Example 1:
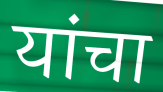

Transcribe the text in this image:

यांचा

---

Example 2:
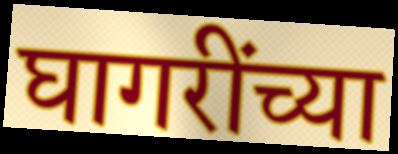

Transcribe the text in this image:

घागरींच्या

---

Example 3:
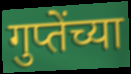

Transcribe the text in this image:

गुप्तेंच्या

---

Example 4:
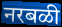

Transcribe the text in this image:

नरबळी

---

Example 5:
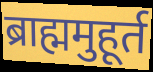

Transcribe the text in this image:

ब्राह्ममुहूर्त